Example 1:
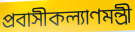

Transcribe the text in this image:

প্রবাসীকল্যাণমন্ত্রী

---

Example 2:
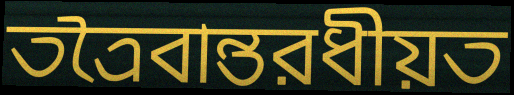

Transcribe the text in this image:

তত্রৈবান্তরধীয়ত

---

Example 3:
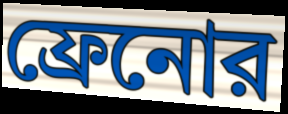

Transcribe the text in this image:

ফ্রেনোর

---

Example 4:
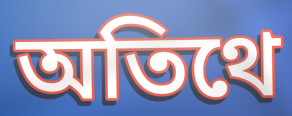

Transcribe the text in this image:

অতিথে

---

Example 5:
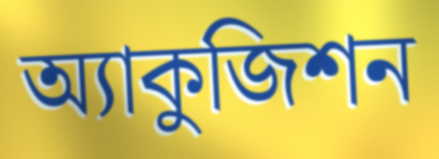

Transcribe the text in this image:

অ্যাকুজিশন